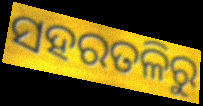
ସହରତଳିରୁ